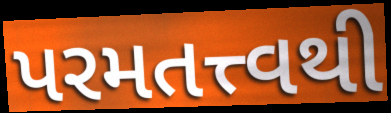
પરમતત્ત્વથી